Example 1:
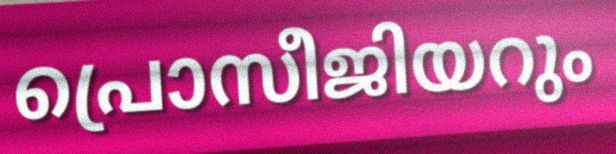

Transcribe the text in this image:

പ്രൊസീജിയറും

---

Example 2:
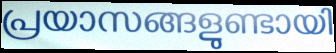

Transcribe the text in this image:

പ്രയാസങ്ങളുണ്ടായി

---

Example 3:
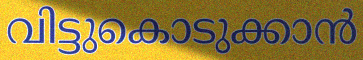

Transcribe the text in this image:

വിട്ടുകൊടുക്കാൻ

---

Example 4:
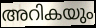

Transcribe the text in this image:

അറികയും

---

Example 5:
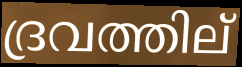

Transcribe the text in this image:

ദ്രവത്തില്